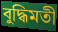
বুদ্ধিমতী